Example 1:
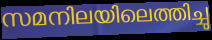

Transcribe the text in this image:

സമനിലയിലെത്തിച്ചു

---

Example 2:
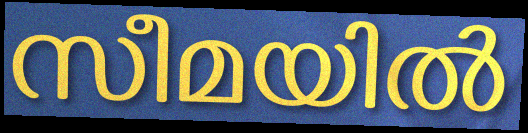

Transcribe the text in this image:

സീമയിൽ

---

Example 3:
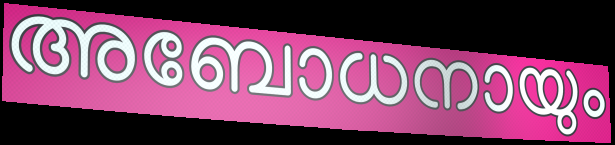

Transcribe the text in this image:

അബോധനായും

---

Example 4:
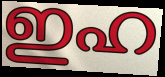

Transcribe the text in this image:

ഇഹ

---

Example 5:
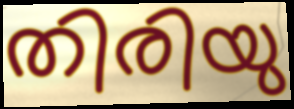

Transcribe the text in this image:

തിരിയു